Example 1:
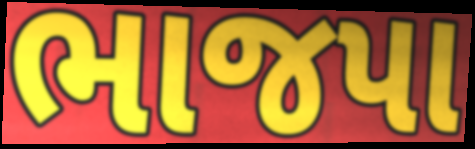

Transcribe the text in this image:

ભાજપા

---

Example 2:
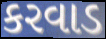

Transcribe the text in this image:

કરવાડ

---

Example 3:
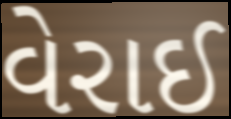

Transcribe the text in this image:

વેરાઈ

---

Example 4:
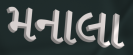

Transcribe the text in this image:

મનાલા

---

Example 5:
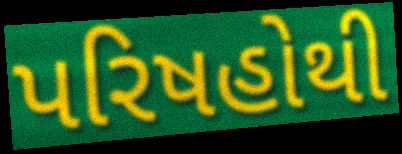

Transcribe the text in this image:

પરિષહોથી